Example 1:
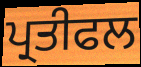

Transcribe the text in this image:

ਪ੍ਰਤੀਫਲ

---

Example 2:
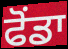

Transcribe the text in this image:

ਫੋਂਡਾ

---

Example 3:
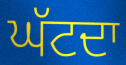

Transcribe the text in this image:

ਘੱਟਦਾ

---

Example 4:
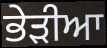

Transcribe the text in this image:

ਭੇੜੀਆ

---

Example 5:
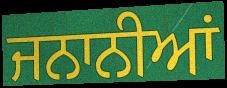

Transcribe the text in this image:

ਜਨਾਨੀਆਂ